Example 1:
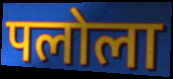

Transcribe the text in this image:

पलोला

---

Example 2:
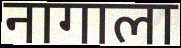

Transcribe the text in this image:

नागाला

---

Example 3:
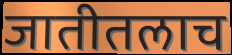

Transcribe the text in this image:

जातीतलाच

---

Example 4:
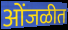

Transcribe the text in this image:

ओंजळीत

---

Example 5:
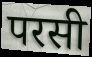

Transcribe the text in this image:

परसी